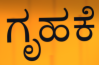
ಗೃಹಕೆ